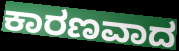
ಕಾರಣವಾದ